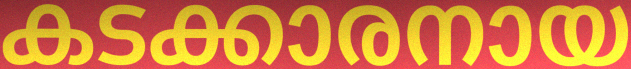
കടക്കാരനായ